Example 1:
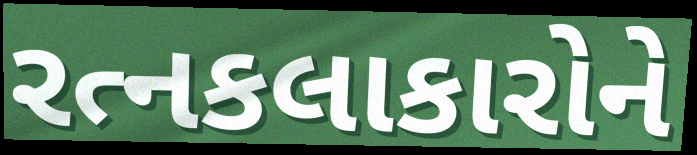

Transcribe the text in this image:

રત્નકલાકારોને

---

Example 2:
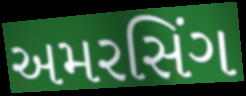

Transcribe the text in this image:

અમરસિંગ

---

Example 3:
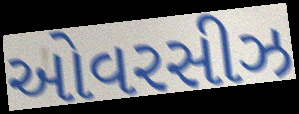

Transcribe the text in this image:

ઓવરસીઝ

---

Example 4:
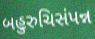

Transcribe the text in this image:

બહુરુચિસંપન્ન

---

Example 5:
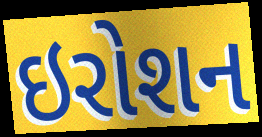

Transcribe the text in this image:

ઇરોશન